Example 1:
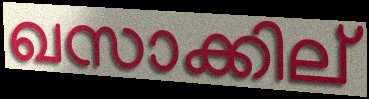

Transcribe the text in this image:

ഖസാക്കില്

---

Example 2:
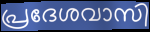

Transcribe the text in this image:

പ്രദേശവാസി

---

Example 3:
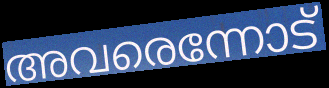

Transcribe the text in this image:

അവരെന്നോട്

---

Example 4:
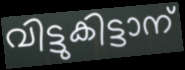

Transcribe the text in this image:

വിട്ടുകിട്ടാന്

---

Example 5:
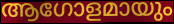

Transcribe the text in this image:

ആഗോളമായും